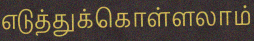
எடுத்துக்கொள்ளலாம்